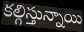
కల్గిస్తున్నాయి